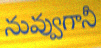
నువ్వుగానీ